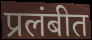
प्रलंबीत